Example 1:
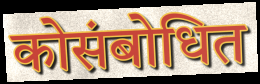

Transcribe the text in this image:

कोसंबोधित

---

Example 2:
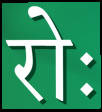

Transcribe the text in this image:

रोः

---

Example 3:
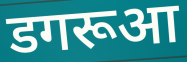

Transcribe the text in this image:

डगरूआ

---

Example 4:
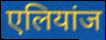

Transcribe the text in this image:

एलियांज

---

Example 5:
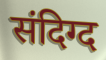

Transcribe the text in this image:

संदिग्द